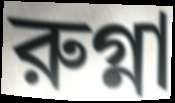
রুগ্না